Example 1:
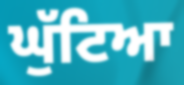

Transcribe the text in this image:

ਘੁੱਟਿਆ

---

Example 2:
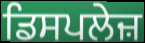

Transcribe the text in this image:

ਡਿਸਪਲੇਜ਼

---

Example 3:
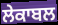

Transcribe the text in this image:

ਲੇਕਾਬਲ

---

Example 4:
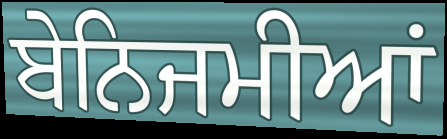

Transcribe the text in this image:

ਬੇਨਿਜਮੀਆਂ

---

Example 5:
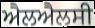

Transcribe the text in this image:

ਐਲਐਲਸੀ